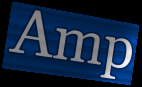
Amp